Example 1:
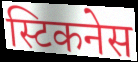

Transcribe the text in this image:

स्टिकनेस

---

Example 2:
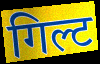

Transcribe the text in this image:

गिल्ट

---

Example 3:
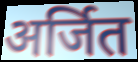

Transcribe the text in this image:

अर्जित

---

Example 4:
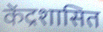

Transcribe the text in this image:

केंद्रशासित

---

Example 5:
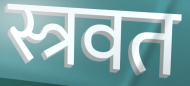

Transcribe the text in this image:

स्त्रवत